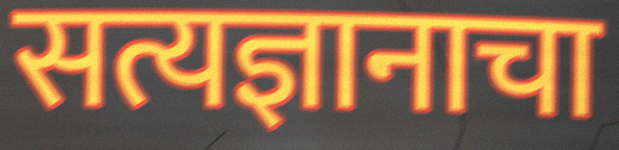
सत्यज्ञानाचा